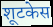
शूटकेस